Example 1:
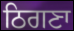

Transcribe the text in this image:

ਠਿਗਣਾ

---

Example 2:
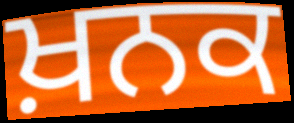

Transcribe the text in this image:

ਖ਼ਨਕ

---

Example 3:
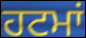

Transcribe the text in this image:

ਹਟਮਾਂ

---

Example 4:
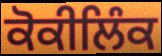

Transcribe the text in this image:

ਕੋਕੀਲਿੰਕ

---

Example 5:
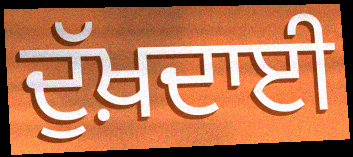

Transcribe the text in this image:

ਦੁੱਖ਼ਦਾਈ